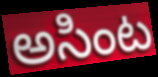
అసింట